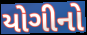
યોગીનો